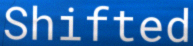
Shifted